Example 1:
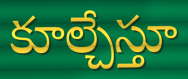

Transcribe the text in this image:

కూల్చేస్తూ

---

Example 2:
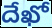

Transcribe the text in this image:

దేఖో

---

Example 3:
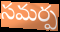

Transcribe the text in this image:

సమర్ప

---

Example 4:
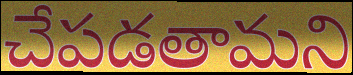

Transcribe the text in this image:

చేపడతామని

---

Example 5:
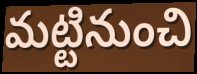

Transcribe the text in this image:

మట్టినుంచి